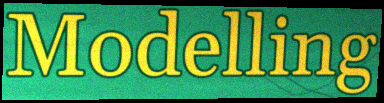
Modelling